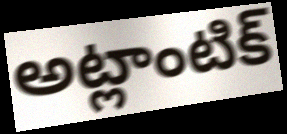
అట్లాంటిక్